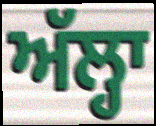
ਅੱਲ੍ਹਾ